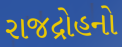
રાજદ્રોહનો